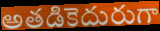
అతడికెదురుగా